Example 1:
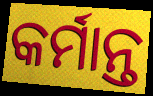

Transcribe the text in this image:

କର୍ମାନ୍ତ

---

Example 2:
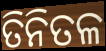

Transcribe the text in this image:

ତିନିତଳ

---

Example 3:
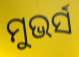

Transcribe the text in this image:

ମୁଭର୍ସ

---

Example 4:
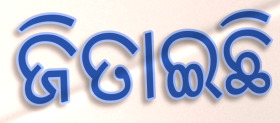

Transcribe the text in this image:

ଜିତାଇଛି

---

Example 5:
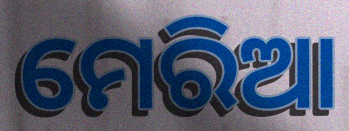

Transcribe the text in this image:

ମେରିଆ